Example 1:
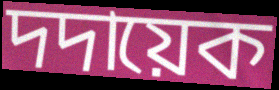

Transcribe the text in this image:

দদায়েক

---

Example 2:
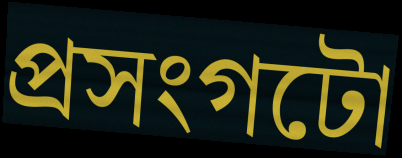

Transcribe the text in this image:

প্ৰসংগটো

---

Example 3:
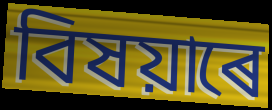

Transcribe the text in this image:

বিষয়াৰে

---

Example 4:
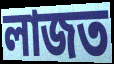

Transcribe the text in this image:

লাজত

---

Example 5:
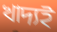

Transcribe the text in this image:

খাদ্যই